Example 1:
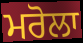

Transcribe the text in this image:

ਮਰੋਲਾ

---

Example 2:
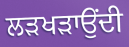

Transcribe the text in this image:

ਲੜਖੜਾਉਂਦੀ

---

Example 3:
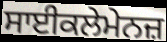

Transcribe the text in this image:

ਸਾਈਕਲੇਮੇਨਜ਼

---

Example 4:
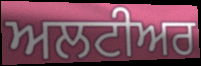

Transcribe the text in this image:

ਅਲਟੀਅਰ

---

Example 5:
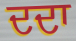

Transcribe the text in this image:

ਦਦਾ